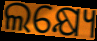
ଲକ୍ଷ୍ୟେ